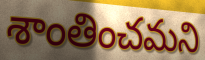
శాంతించమని